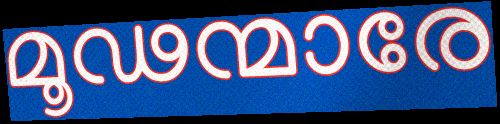
മൂഢന്മാരേ